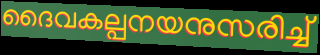
ദൈവകല്പനയനുസരിച്ച്